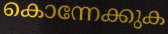
കൊന്നേക്കുക